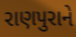
રાણપુરાને